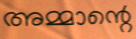
അമ്മാന്റെ